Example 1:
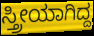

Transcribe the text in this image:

ಸ್ತ್ರೀಯಾಗಿದ್ದ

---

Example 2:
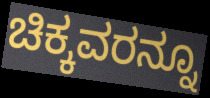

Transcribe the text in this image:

ಚಿಕ್ಕವರನ್ನೂ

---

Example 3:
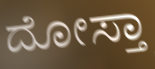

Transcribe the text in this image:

ದೋಸ್ತಾ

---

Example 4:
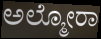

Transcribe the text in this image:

ಅಲ್ಮೋರಾ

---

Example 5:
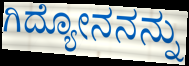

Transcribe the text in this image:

ಗಿದ್ಯೋನನನ್ನು